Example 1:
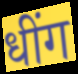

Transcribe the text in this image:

धींग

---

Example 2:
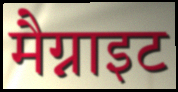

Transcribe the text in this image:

मैग्नाइट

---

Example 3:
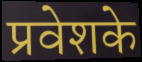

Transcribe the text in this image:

प्रवेशके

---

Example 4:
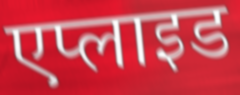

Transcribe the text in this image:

एप्लाइड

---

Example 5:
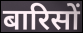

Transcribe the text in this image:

बारिसों